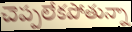
చెప్పలేకపోతున్నా